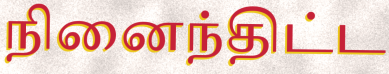
நினைந்திட்ட